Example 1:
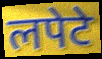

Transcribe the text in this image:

लपेटे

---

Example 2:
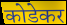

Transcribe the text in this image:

कोडेकर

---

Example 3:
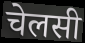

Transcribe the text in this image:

चेलसी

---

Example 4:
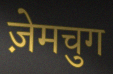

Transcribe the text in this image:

ज़ेमचुग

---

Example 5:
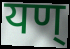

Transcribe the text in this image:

यण्